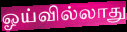
ஓய்வில்லாது